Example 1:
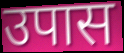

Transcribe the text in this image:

उपास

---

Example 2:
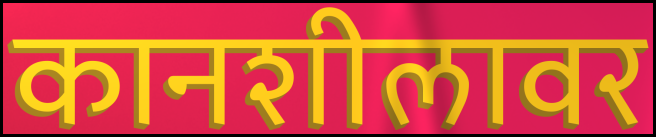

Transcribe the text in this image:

कानशीलावर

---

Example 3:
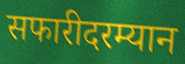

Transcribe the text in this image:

सफारीदरम्यान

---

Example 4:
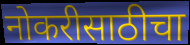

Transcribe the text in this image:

नोकरीसाठीचा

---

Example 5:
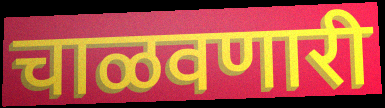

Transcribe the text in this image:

चाळवणारी